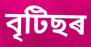
বৃটিছৰ